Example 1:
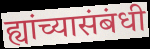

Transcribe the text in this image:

ह्यांच्यासंबंधी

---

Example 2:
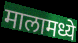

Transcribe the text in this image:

मालामध्ये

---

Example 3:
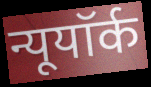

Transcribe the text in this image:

न्यूयॉर्क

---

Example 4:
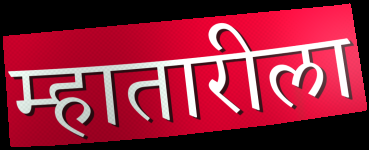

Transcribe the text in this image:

म्हातारीला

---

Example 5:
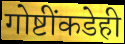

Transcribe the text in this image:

गोष्टींकडेही